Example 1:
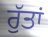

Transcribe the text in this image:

ਰੁੱਤਾਂ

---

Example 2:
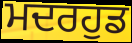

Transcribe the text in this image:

ਮਦਰਹੁਡ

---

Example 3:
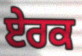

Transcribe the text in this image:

ਏਰਕ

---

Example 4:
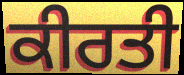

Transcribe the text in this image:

ਕੀਰਤੀ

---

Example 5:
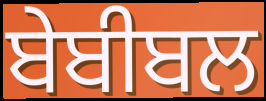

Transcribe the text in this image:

ਬੇਬੀਬਲ